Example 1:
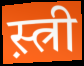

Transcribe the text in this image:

स़्त्री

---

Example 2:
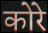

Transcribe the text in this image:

कोरे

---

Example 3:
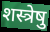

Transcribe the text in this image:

शस्त्रेषु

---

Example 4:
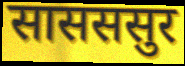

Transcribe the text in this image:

सासससुर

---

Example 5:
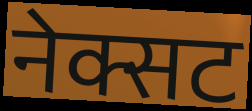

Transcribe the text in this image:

नेक्सट